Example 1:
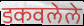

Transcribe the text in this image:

डकवलेले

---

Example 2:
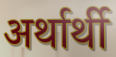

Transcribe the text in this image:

अर्थार्थी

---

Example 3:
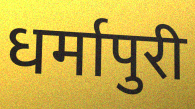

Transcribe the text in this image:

धर्मापुरी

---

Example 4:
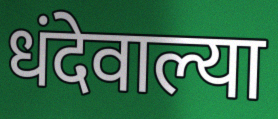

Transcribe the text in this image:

धंदेवाल्या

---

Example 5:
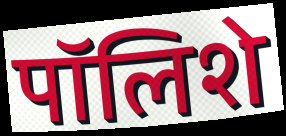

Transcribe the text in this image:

पॉलिशे